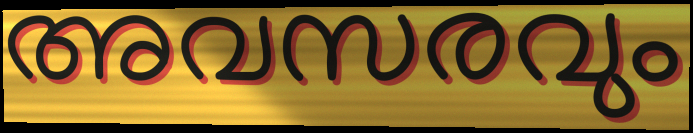
അവസരവും